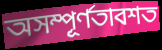
অসম্পূর্ণতাবশত